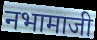
नभामाजी